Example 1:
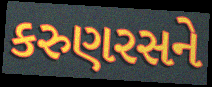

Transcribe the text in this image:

કરુણરસને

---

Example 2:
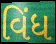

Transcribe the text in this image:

વિંધ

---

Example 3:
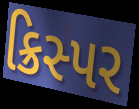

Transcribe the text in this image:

ક્રિસ્પર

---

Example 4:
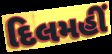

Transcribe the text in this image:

દિલમહીં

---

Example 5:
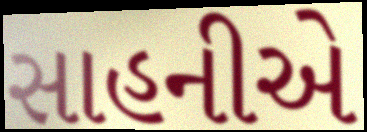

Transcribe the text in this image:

સાહનીએ